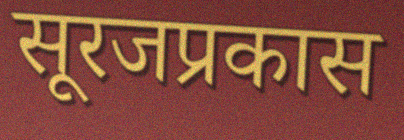
सूरजप्रकास